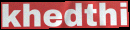
khedthi